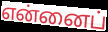
என்னைப்